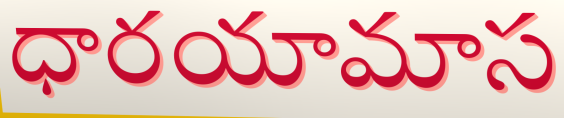
ధారయామాస